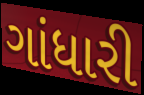
ગાંધારી